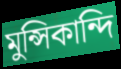
মুন্সিকান্দি